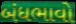
બંધભાવો